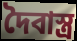
দৈবাস্ত্র